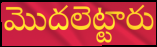
మొదలెట్టారు